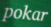
pokar